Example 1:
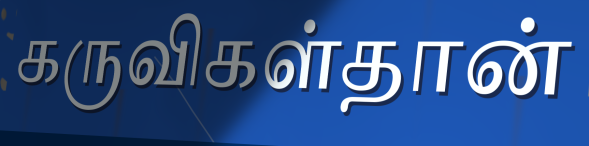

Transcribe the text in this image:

கருவிகள்தான்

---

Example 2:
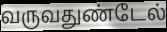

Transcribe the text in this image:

வருவதுண்டேல்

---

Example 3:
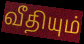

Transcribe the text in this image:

வீதியும்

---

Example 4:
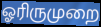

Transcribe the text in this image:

ஓரிருமுறை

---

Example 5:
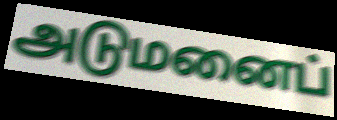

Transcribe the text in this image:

அடுமனைப்